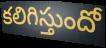
కలిగిస్తుందో